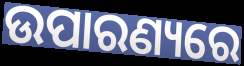
ଉପାରଣ୍ୟରେ